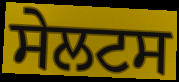
ਸੇਲਟਸ